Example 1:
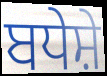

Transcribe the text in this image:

ਬਧੇਸ਼ੇ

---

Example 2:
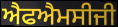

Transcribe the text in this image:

ਐਫਐਮਸੀਜੀ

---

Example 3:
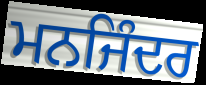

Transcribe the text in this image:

ਮਨਜਿੰਦਰ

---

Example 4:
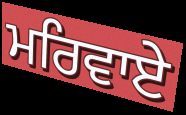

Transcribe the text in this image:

ਮਰਿਵਾਏ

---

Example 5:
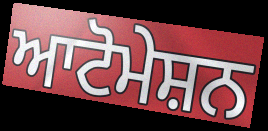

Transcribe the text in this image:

ਆਟੋਮੇਸ਼ਨ